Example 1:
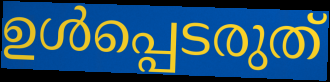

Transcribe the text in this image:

ഉൾപ്പെടരുത്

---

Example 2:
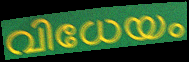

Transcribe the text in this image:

വിധേയം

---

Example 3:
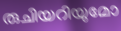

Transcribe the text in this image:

രുചിയറിയുമോ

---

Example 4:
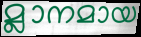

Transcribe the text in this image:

മ്ലാനമായ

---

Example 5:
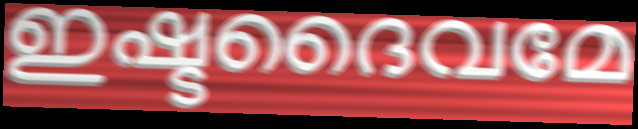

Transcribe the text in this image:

ഇഷ്ടദൈവമേ